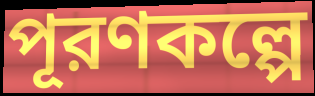
পূরণকল্পে